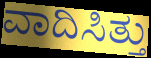
ವಾದಿಸಿತ್ತು